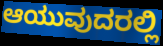
ಆಯುವುದರಲ್ಲಿ